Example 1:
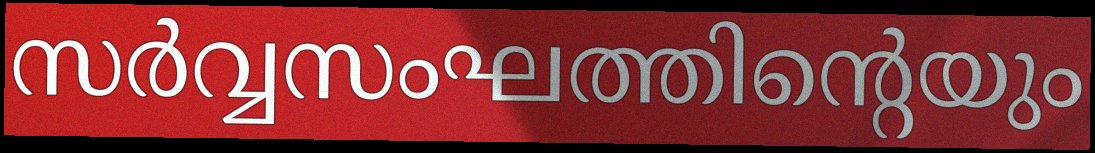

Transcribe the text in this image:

സർവ്വസംഘത്തിന്റെയും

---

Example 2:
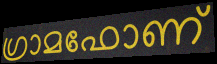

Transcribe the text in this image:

ഗ്രാമഫോണ്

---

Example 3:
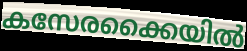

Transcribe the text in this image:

കസേരക്കൈയിൽ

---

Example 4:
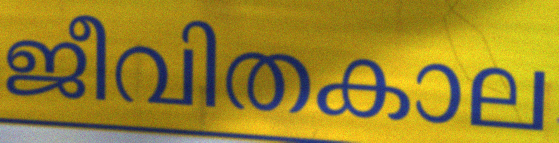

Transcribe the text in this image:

ജീവിതകാല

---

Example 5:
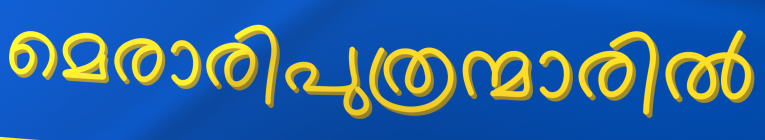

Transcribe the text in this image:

മെരാരിപുത്രന്മാരിൽ